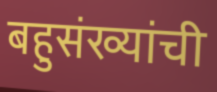
बहुसंख्यांची